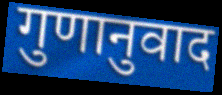
गुणानुवाद